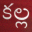
కల్ల